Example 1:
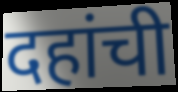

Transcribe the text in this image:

दहांची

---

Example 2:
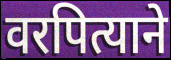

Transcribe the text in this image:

वरपित्याने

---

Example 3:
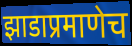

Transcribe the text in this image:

झाडाप्रमाणेच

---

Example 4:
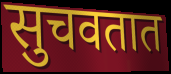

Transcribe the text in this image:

सुचवतात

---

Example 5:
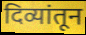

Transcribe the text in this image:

दिव्यांतून